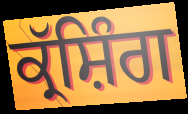
ਕ੍ਰੱਸ਼ਿੰਗ